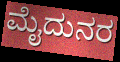
ಮೈದುನರ